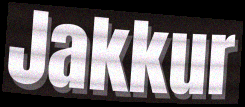
Jakkur